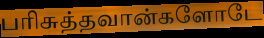
பரிசுத்தவான்களோடே